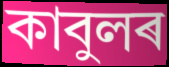
কাবুলৰ